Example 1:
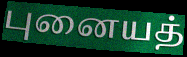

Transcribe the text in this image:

புனையத்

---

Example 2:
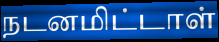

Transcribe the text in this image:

நடனமிட்டாள்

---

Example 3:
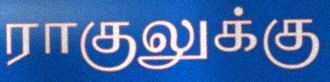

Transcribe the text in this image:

ராகுலுக்கு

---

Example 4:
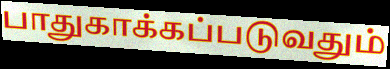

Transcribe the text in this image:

பாதுகாக்கப்படுவதும்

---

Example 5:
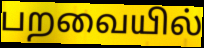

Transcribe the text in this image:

பறவையில்